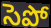
సెపో